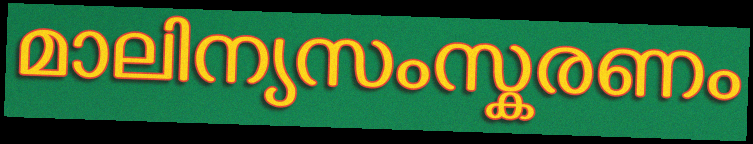
മാലിന്യസംസ്കരണം